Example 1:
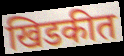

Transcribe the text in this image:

खिडकीत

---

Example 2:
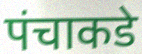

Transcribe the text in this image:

पंचाकडे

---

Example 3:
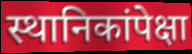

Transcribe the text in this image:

स्थानिकांपेक्षा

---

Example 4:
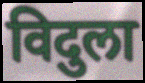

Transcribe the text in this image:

विदुला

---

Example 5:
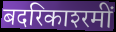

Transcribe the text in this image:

बदरिकाश्रमीं